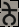
ਨੇ